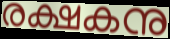
രക്ഷകനു